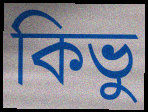
কিভু